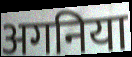
अगनिया